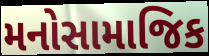
મનોસામાજિક